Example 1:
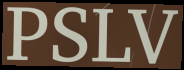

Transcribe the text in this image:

PSLV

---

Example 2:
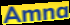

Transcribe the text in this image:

Amna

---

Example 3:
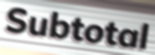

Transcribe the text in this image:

Subtotal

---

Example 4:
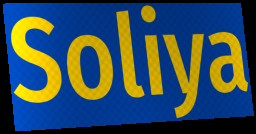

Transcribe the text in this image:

Soliya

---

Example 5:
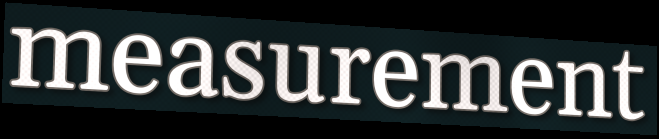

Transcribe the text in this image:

measurement